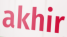
akhir